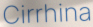
Cirrhina